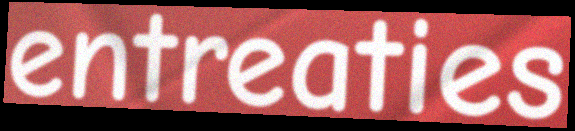
entreaties